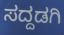
ಸದ್ದಡಗಿ